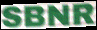
SBNR